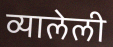
व्यालेली